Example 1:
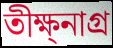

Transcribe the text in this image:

তীক্ষ্নাগ্র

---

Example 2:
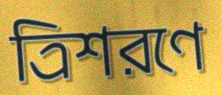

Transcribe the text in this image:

ত্রিশরণে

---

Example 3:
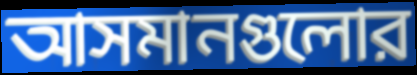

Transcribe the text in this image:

আসমানগুলোর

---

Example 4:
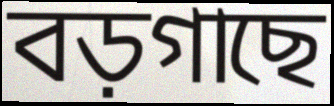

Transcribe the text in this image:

বড়গাছে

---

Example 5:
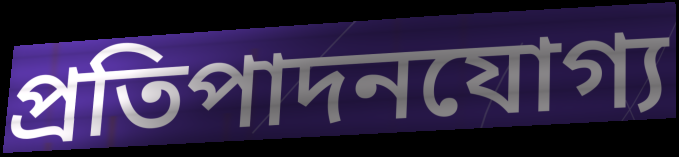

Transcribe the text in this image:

প্রতিপাদনযোগ্য